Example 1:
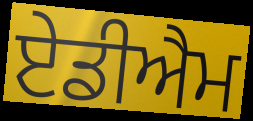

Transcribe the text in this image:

ਏਡੀਐਮ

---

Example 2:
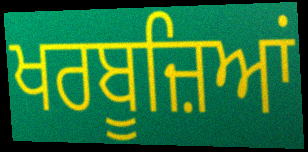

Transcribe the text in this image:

ਖਰਬੂਜ਼ਿਆਂ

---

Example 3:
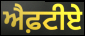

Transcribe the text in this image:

ਐਫ਼ਟੀਏ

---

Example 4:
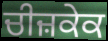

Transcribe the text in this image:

ਚੀਜ਼ਕੇਕ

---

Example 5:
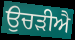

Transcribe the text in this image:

ਉਚੜੀਐ